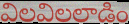
విలవిలలాడిం